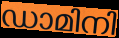
ഡാമിനി